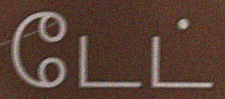
டேட்